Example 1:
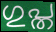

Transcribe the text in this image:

ഗുപ്ത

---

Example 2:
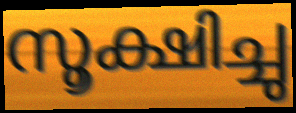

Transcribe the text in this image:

സൂക്ഷിച്ചു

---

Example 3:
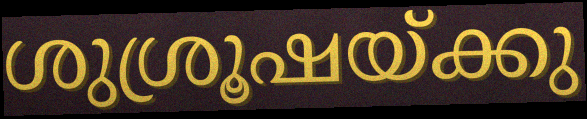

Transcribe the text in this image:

ശുശ്രൂഷയ്ക്കു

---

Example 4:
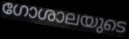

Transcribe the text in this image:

ഗോശാലയുടെ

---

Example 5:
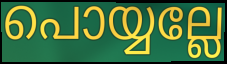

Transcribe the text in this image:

പൊയ്യല്ലേ